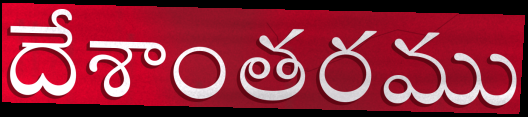
దేశాంతరము